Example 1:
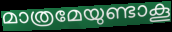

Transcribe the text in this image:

മാത്രമേയുണ്ടാകൂ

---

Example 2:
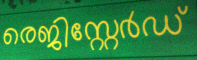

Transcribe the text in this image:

രെജിസ്റ്റേർഡ്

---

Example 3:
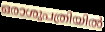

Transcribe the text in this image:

ഒരാശുപത്രിയിൽ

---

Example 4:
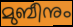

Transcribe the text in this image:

മുബീനും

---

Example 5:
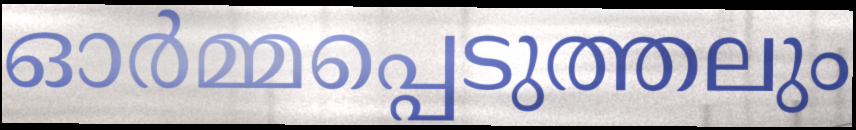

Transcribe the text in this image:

ഓർമ്മപ്പെടുത്തലും